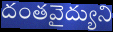
దంతవైద్యుని